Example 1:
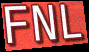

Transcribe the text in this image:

FNL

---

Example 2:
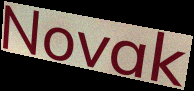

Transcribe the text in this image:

Novak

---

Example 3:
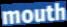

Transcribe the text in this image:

mouth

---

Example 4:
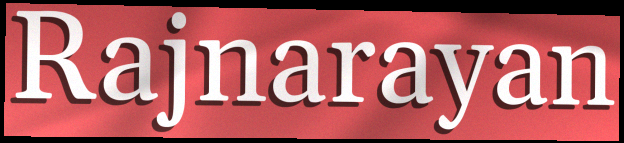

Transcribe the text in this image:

Rajnarayan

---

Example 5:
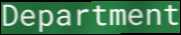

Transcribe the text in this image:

Department